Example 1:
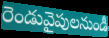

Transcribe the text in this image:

రెండువైపులనుండీ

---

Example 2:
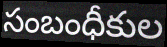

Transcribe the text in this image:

సంబంధీకుల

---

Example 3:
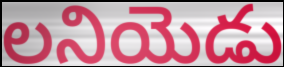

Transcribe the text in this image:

లనియెడు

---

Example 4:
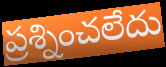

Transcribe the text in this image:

ప్రశ్నించలేదు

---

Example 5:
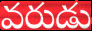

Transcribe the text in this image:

వరుడు